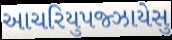
આચરિયુપજ્ઝાયેસુ